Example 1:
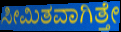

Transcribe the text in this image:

ಸೀಮಿತವಾಗಿತ್ತೇ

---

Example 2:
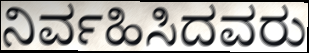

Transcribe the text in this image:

ನಿರ್ವಹಿಸಿದವರು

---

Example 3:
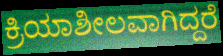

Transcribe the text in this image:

ಕ್ರಿಯಾಶೀಲವಾಗಿದ್ದರೆ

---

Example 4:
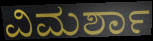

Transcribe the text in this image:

ವಿಮರ್ಶಾ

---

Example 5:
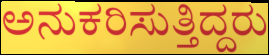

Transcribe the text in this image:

ಅನುಕರಿಸುತ್ತಿದ್ದರು